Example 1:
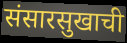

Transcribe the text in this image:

संसारसुखाची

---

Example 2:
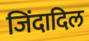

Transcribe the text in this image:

जिंदादिल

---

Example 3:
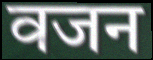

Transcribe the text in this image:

वजन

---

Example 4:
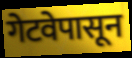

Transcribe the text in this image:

गेटवेपासून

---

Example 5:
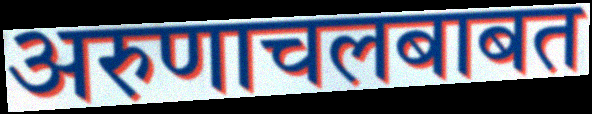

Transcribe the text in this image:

अरुणाचलबाबत